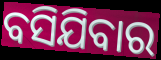
ବସିଯିବାର